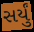
સર્યું